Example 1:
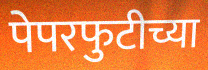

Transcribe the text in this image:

पेपरफुटीच्या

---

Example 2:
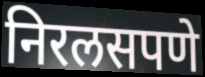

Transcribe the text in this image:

निरलसपणे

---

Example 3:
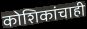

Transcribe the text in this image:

कोशिकांचाही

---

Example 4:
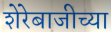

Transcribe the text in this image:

शेरेबाजीच्या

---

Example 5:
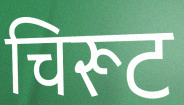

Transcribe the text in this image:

चिरूट